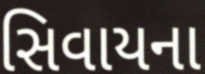
સિવાયના